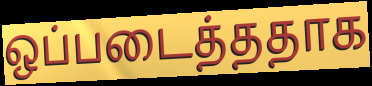
ஒப்படைத்ததாக